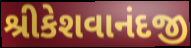
શ્રીકેશવાનંદજી